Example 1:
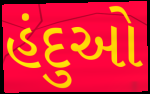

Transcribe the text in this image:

હંદુઓ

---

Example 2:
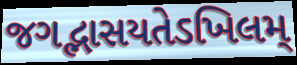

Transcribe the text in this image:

જગદ્ભાસયતેઽખિલમ્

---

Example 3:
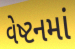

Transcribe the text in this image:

વેષ્ટનમાં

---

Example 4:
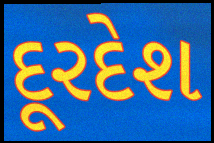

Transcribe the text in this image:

દૂરદેશ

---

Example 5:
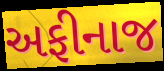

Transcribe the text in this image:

અફીનાજ